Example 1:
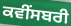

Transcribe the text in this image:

ਕਵੀਂਸਬਰੀ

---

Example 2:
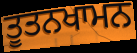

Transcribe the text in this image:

ਤੂਤਨਖਾਮਨ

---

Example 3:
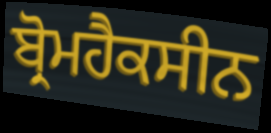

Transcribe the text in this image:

ਬ੍ਰੋਮਹੈਕਸੀਨ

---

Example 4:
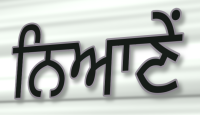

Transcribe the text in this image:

ਨਿਆਣੇਂ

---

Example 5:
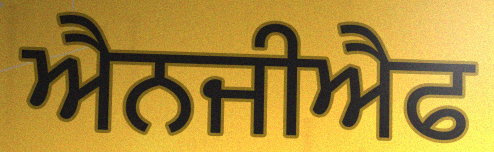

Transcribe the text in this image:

ਐਨਜੀਐਫ